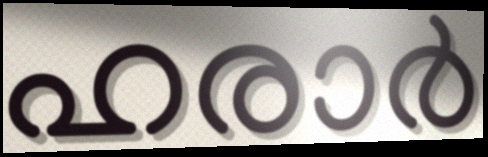
ഹരാർ